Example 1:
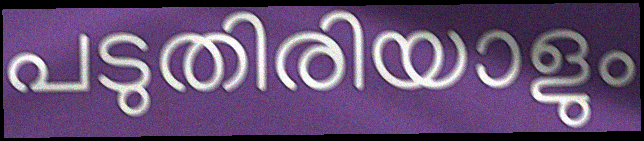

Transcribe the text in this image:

പടുതിരിയാളും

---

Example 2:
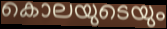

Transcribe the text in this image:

കൊലയുടെയും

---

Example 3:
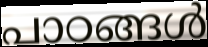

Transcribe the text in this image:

പാഠങ്ങൾ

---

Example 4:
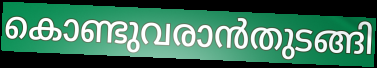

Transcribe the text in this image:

കൊണ്ടുവരാൻതുടങ്ങി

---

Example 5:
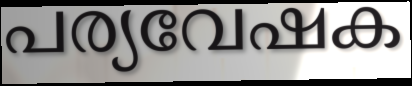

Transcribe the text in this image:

പര്യവേഷക